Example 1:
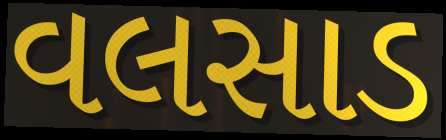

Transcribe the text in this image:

વલસાડ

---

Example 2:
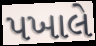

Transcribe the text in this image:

પખાલે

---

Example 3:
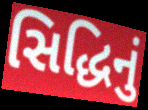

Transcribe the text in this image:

સિદ્ધિનું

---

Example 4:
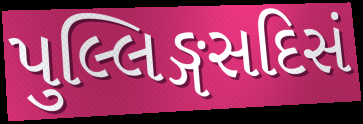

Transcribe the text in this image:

પુલ્લિઙ્ગસદિસં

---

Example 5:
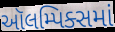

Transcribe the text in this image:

ઑલમ્પિક્સમાં